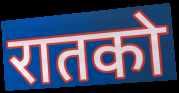
रातको